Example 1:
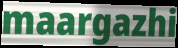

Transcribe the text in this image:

maargazhi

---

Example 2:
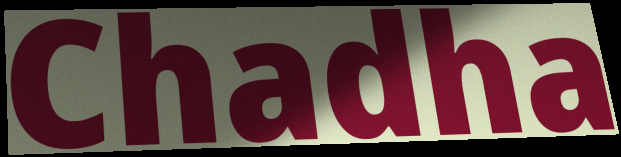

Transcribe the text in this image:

Chadha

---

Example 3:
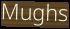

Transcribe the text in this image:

Mughs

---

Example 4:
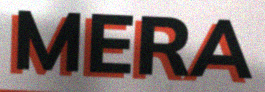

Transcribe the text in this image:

MERA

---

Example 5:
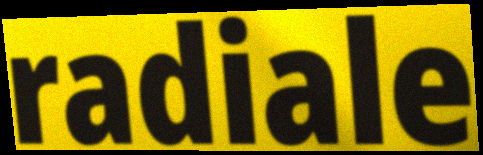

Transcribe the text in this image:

radiale